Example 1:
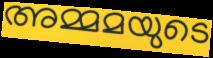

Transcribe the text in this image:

അമ്മമയുടെ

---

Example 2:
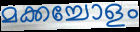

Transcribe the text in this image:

മക്കച്ചോളം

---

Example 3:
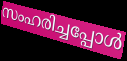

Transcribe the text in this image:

സംഹരിച്ചപ്പോൾ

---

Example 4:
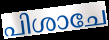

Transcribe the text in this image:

പിശാചേ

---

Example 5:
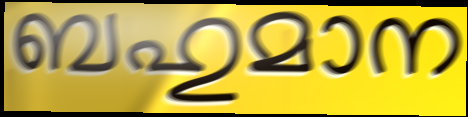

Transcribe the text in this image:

ബഹുമാന